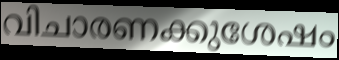
വിചാരണക്കുശേഷം